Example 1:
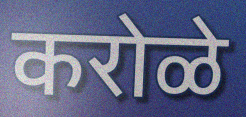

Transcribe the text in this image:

करोळे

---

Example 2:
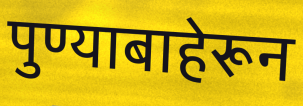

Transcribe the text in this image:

पुण्याबाहेरून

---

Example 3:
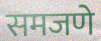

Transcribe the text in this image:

समजणे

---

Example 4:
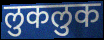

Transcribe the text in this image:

लुकलुक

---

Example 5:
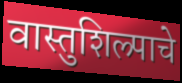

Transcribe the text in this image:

वास्तुशिल्पाचे